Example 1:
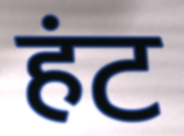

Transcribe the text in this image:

हंट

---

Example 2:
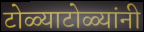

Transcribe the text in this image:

टोळ्याटोळ्यांनी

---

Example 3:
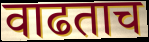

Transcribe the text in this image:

वाढताच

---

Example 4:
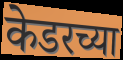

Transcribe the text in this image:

केडरच्या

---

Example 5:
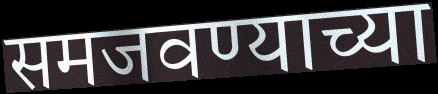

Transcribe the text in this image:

समजवण्याच्या